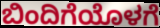
ಬಿಂದಿಗೆಯೊಳಗೆ